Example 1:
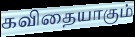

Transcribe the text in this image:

கவிதையாகும்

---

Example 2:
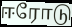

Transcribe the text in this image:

ஈரோடு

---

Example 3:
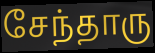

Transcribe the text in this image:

சேந்தாரு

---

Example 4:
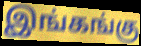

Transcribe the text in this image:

இங்கங்கு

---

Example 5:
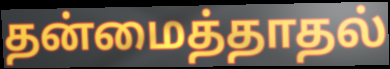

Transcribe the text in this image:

தன்மைத்தாதல்